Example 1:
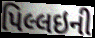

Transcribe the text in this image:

પિલ્લઇની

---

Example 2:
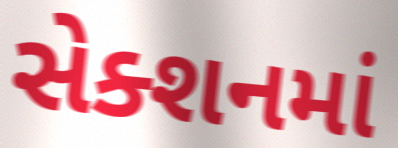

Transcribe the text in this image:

સેક્શનમાં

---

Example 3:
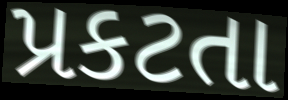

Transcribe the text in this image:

પ્રકટતા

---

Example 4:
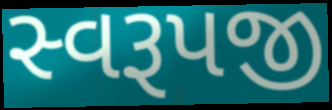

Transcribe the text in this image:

સ્વરૂપજી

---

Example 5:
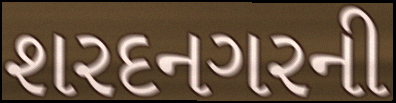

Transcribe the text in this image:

શરદનગરની